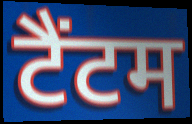
टैंटम